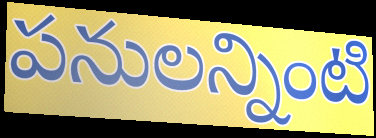
పనులన్నింటి